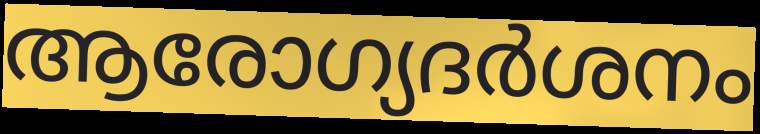
ആരോഗ്യദർശനം